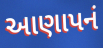
આણાપનં